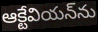
ఆక్టేవియన్‌ను